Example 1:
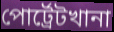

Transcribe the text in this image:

পোর্ট্রেটখানা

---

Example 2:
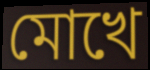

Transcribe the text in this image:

মোখে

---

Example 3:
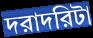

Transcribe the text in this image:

দরাদরিটা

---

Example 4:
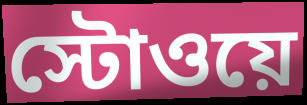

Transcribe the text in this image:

স্টোওয়ে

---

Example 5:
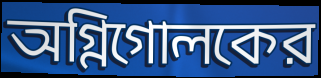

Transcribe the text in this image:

অগ্নিগোলকের